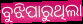
ବୁଝିପାରୁଥିଲା